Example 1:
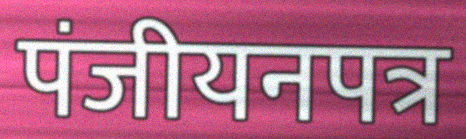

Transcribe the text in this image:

पंजीयनपत्र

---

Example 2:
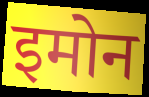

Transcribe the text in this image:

इमोन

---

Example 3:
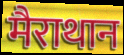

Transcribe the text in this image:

मैराथान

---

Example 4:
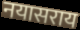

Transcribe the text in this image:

नयासराय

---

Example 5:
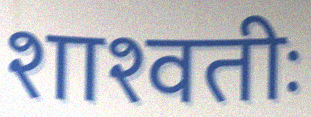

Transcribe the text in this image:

शाश्वतीः